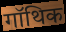
गॉथिक